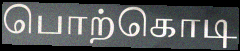
பொற்கொடி